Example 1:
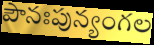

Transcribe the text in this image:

పౌనఃపున్యంగల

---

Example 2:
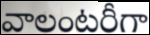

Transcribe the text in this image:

వాలంటరీగా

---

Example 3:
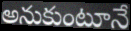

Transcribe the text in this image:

అనుకుంటూనే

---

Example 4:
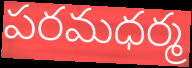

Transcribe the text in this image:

పరమధర్మ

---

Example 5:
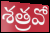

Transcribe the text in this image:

శత్రవో